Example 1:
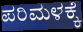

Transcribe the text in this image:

ಪರಿಮಳಕ್ಕೆ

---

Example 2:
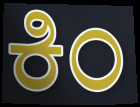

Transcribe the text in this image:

ಕಿಂ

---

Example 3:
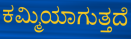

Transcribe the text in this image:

ಕಮ್ಮಿಯಾಗುತ್ತದೆ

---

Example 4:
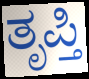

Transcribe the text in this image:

ತೃಪ್ತಿ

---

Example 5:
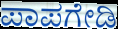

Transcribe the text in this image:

ಪಾಪಗೇಡಿ